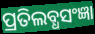
ପ୍ରତିଲବ୍ଧସଂଜ୍ଞା